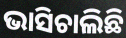
ଭାସିଚାଲିଛି